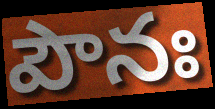
పౌనః